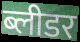
ब्लीडर